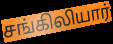
சங்கிலியார்